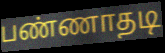
பண்ணாதடி